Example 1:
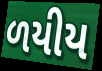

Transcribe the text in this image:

ળયીય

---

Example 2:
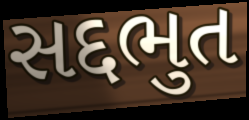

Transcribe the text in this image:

સદ્દભુત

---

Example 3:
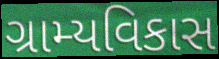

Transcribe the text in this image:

ગ્રામ્યવિકાસ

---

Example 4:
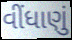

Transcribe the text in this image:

વીંધાણું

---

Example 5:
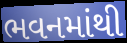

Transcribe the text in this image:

ભવનમાંથી